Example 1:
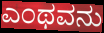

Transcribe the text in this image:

ಎಂಥವನು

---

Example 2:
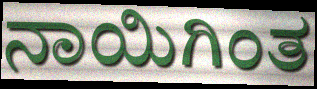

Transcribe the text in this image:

ನಾಯಿಗಿಂತ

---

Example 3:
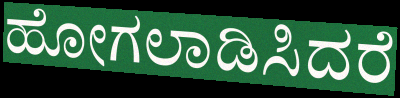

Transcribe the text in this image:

ಹೋಗಲಾಡಿಸಿದರೆ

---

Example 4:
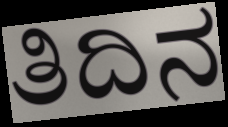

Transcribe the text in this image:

ತಿದಿನ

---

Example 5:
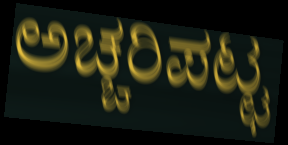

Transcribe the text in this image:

ಅಚ್ಚರಿಪಟ್ಟ